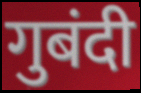
गुबंदी